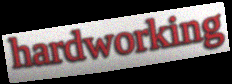
hardworking